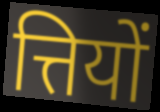
त्तियों